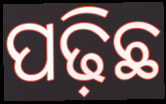
ପଢ଼ିଛ